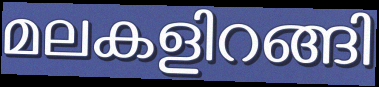
മലകളിറങ്ങി